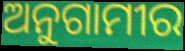
ଅନୁଗାମୀର